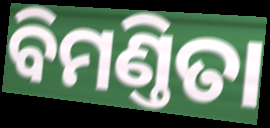
ବିମଣ୍ତିତା